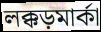
লক্কড়মার্কা